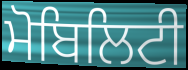
ਮੋਬਿਲਿਟੀ